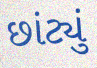
છાંટ્યું